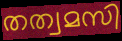
തത്വമസി